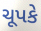
ચૂપકે